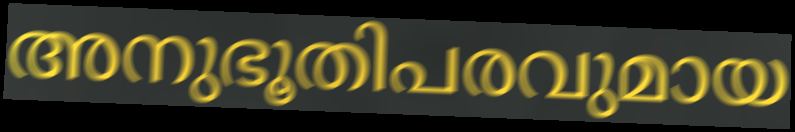
അനുഭൂതിപരവുമായ